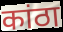
कांठा